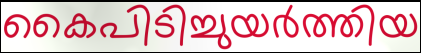
കൈപിടിച്ചുയർത്തിയ